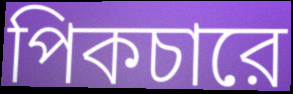
পিকচারে